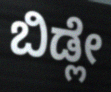
ಬಿಡ್ಲೇ